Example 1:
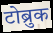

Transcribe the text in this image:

टोब्रुक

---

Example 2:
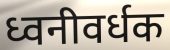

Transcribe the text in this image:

ध्वनीवर्धक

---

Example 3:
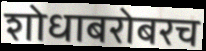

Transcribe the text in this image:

शोधाबरोबरच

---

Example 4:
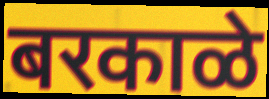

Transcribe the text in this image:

बरकाळे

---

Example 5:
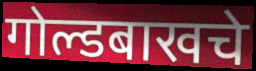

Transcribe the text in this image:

गोल्डबाखचे